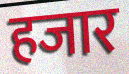
हजार